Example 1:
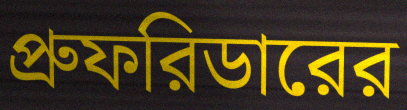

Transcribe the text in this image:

প্রুফরিডারের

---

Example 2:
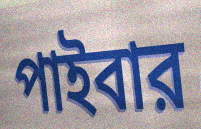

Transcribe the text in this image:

পাইবার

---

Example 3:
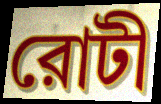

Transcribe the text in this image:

রোটী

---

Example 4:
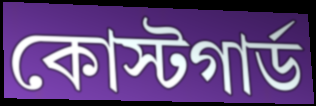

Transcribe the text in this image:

কোস্টগার্ড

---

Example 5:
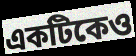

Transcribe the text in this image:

একটিকেও